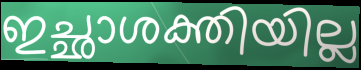
ഇച്ഛാശക്തിയില്ല